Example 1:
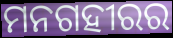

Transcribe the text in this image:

ମନଗହୀରର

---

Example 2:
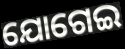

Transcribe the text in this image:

ଯୋଗେଇ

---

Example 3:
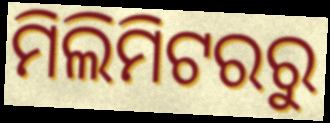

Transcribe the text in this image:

ମିଲିମିଟରରୁ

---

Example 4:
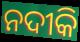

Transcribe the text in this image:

ନଦୀକି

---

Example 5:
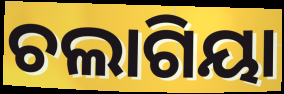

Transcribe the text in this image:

ଚଲାଗିୟା